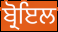
ਬ੍ਰੋਇਲ